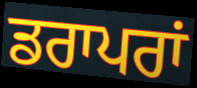
ਡਰਾਪਰਾਂ